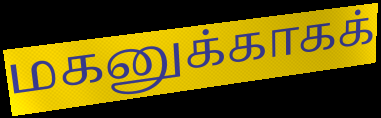
மகனுக்காகக்